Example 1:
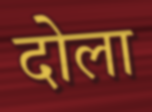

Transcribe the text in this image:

दोला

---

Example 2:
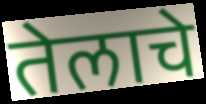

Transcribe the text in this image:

तेलाचे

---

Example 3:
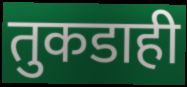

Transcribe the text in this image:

तुकडाही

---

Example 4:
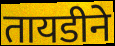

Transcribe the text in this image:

तायडीने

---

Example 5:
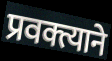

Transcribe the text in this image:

प्रवक्‍त्याने